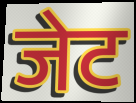
जेट